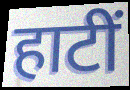
हाटीं